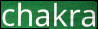
chakra